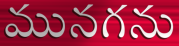
మునగను